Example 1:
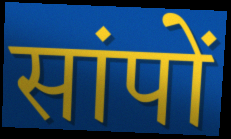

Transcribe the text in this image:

सांपों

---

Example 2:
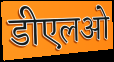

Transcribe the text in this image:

डीएलओ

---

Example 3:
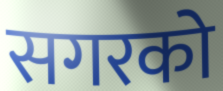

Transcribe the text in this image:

सगरको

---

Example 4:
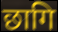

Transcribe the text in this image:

छागि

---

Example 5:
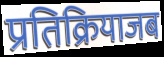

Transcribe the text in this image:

प्रतिक्रियाजब